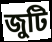
জুটি